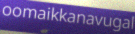
oomaikkanavugal